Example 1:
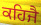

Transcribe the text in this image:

ਕਹਿਜੈ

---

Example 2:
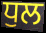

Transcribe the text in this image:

ਧੁਲ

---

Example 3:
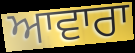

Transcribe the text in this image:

ਆਵਾਰਾ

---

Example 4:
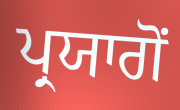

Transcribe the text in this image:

ਪ੍ਰਯਾਗੋਂ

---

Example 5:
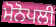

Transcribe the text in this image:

ਮੋਨੋਪਲੀ